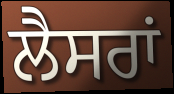
ਲੈਸਰਾਂ